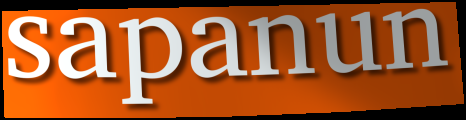
sapanun